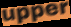
upper